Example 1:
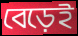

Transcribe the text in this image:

বেড়েই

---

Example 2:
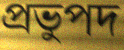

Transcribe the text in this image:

প্রভুপদ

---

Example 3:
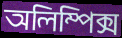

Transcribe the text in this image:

অলিম্পিক্স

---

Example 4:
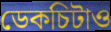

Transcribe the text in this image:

ডেকচিটাও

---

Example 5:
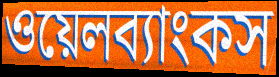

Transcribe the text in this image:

ওয়েলব্যাংকস